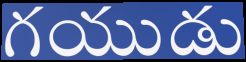
గయుడు